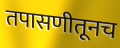
तपासणीतूनच